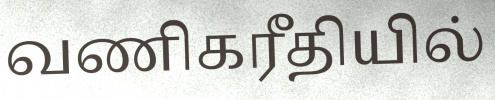
வணிகரீதியில்